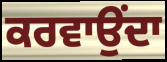
ਕਰਵਾਉਂਦਾ